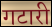
गटारी